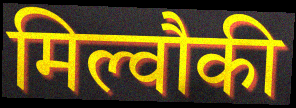
मिल्वौकी